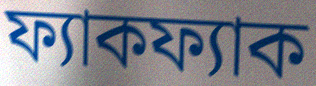
ফ্যাকফ্যাক